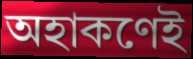
অহাকণেই